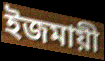
ইজমায়ী